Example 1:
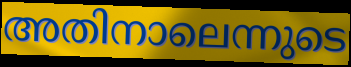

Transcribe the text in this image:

അതിനാലെന്നുടെ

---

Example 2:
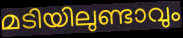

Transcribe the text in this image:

മടിയിലുണ്ടാവും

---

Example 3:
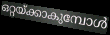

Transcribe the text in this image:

ഒറ്റയ്ക്കാകുമ്പോൾ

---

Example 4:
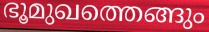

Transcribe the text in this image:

ഭൂമുഖത്തെങ്ങും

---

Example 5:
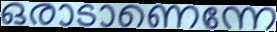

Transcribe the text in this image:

ഒരാടാണെന്നേ